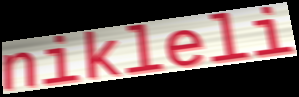
nikleli